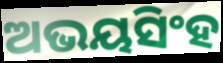
ଅଭୟସିଂହ